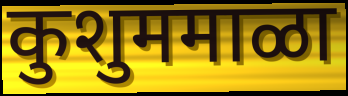
कुशुममाळा